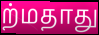
ற்மதாது